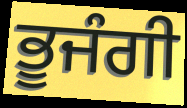
ਭੂਜੰਗੀ